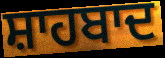
ਸ਼ਾਹਬਾਦ